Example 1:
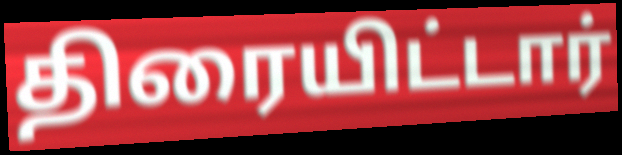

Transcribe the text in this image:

திரையிட்டார்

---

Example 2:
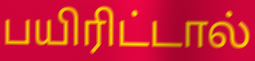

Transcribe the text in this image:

பயிரிட்டால்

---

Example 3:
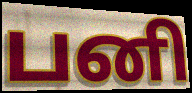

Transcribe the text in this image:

பனி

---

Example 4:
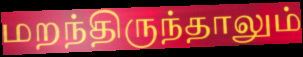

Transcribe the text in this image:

மறந்திருந்தாலும்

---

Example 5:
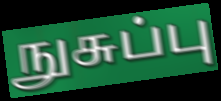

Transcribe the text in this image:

நுசுப்பு